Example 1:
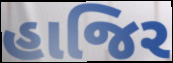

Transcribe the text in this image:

હાજિર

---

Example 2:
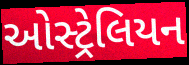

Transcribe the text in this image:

ઓસ્ટ્રેલિયન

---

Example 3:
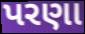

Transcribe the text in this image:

પરણા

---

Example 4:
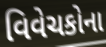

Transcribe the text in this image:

વિવેચકોના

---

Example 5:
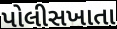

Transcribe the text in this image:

પોલીસખાતા